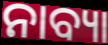
ନାବ୍ୟା